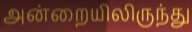
அன்றையிலிருந்து